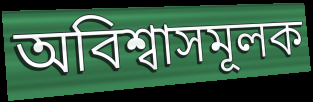
অবিশ্বাসমূলক